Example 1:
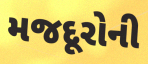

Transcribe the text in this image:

મજદૂરોની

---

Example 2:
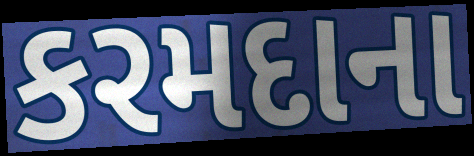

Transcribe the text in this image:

કરમદાના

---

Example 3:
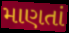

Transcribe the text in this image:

માણતાં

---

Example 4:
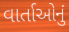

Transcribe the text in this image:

વાર્તાઓનું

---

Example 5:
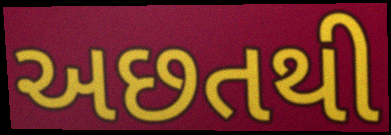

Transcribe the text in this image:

અછતથી